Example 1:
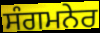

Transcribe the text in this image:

ਸੰਗਮਨੇਰ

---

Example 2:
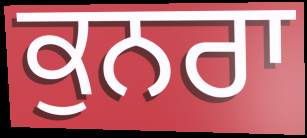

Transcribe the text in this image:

ਕੁਨਰਾ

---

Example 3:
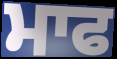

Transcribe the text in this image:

ਮਾਫ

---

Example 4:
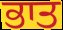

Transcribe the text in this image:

ਭਾਤ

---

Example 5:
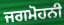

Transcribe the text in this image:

ਜਗਮੋਹਨੀ